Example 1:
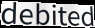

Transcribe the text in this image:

debited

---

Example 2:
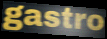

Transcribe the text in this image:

gastro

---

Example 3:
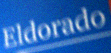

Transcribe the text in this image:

Eldorado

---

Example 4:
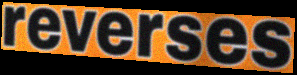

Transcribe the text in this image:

reverses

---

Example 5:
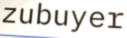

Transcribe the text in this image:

zubuyer